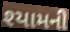
શ્યામની